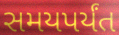
સમયપર્યંત